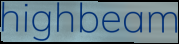
highbeam